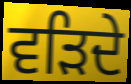
ਵੜਿਦੇ